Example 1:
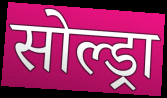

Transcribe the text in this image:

सोल्ड्रा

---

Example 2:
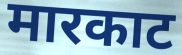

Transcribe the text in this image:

मारकाट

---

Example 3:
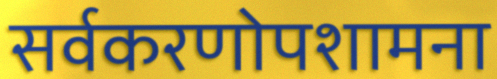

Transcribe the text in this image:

सर्वकरणोपशामना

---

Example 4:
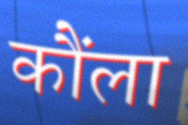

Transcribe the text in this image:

कौंला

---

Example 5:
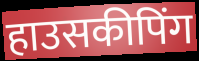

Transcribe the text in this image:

हाउसकीपिंग